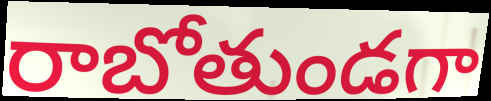
రాబోతుండగా